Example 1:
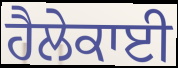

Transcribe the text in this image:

ਹੈਲੇਕਾਈ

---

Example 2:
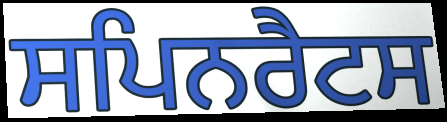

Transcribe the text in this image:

ਸਪਿਨਰੈਟਸ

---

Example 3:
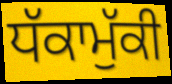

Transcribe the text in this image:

ਧੱਕਾਮੁੱਕੀ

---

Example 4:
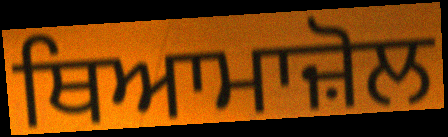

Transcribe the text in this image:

ਥਿਆਮਾਜ਼ੋਲ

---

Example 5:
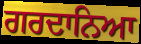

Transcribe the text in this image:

ਗਰਦਾਨਿਆ